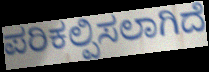
ಪರಿಕಲ್ಪಿಸಲಾಗಿದೆ